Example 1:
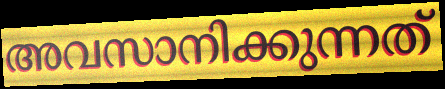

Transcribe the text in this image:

അവസാനിക്കുന്നത്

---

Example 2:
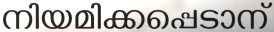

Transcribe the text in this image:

നിയമിക്കപ്പെടാന്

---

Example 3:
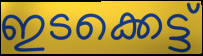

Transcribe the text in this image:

ഇടക്കെട്ട്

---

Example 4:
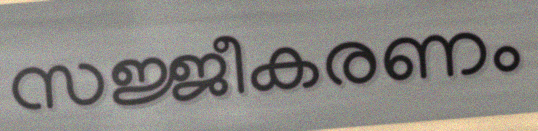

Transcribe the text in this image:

സജ്ജീകരണം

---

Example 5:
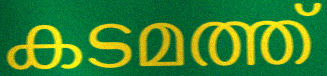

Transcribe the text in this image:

കടമത്ത്